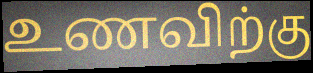
உணவிற்கு